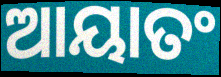
ଆୟାତଂ